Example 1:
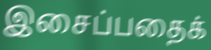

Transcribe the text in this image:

இசைப்பதைக்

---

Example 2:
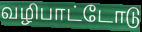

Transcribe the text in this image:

வழிபாட்டோடு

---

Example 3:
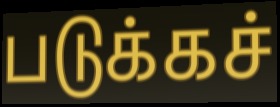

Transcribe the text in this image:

படுக்கச்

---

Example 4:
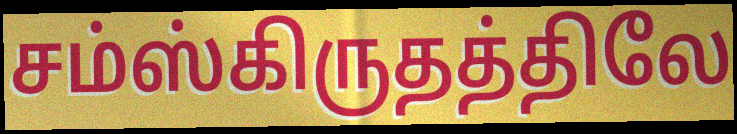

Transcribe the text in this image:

சம்ஸ்கிருதத்திலே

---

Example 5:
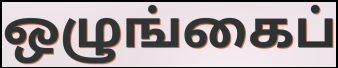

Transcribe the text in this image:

ஒழுங்கைப்